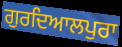
ਗੁਰਦਿਆਲਪੁਰਾ